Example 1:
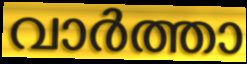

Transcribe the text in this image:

വാർത്താ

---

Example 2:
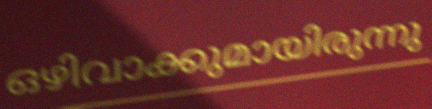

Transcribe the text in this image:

ഒഴിവാക്കുമായിരുന്നു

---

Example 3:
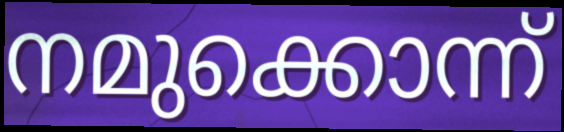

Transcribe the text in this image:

നമുക്കൊന്ന്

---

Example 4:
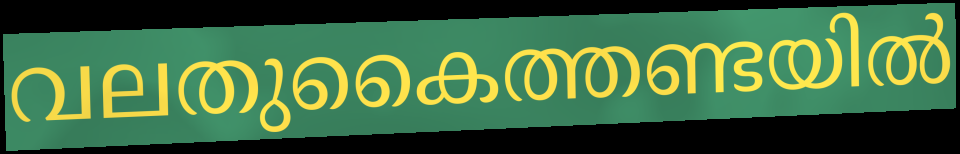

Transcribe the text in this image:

വലതുകൈത്തണ്ടയിൽ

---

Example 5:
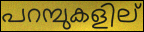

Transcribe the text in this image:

പറമ്പുകളില്